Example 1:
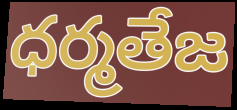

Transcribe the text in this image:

ధర్మతేజ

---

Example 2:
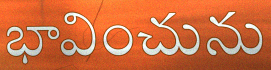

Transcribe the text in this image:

భావించును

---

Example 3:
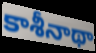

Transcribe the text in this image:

కాశీనాథా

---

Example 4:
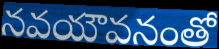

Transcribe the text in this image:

నవయౌవనంతో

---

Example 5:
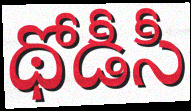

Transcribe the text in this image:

థోడీసీ